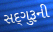
સદ્‌ગુરૂની